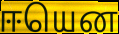
ஈயென